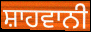
ਸ਼ਾਹਵਾਨੀ